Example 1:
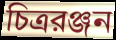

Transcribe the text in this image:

চিত্ররঞ্জন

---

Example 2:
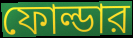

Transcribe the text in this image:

ফোল্ডার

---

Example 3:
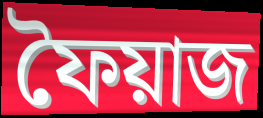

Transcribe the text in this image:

ফৈয়াজ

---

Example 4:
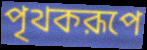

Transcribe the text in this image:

পৃথকরূপে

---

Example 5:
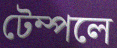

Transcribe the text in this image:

টেম্পলে